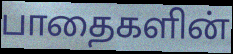
பாதைகளின்